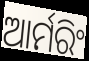
ଆର୍ମରିଂ